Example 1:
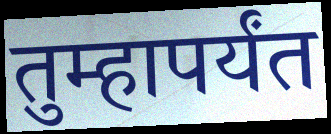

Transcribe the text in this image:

तुम्हापर्यंत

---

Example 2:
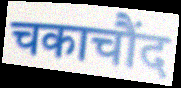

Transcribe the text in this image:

चकाचौंद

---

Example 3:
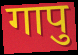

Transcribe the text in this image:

गापु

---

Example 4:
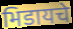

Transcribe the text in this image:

भिडायचे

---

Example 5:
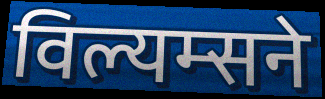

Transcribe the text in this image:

विल्यम्सने